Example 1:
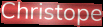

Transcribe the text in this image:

Christope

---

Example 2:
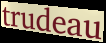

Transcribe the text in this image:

trudeau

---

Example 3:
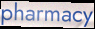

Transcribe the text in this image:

pharmacy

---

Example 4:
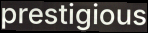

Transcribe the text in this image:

prestigious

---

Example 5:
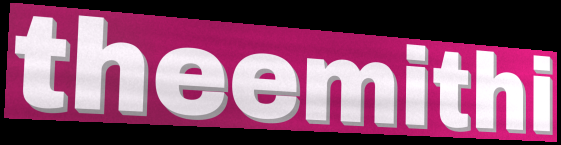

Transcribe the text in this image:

theemithi